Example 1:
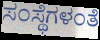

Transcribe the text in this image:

ಸಂಸ್ಥೆಗಳಂತೆ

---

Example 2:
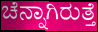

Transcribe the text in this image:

ಚೆನ್ನಾಗಿರುತ್ತೆ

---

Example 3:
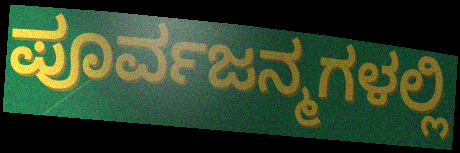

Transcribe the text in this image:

ಪೂರ್ವಜನ್ಮಗಳಲ್ಲಿ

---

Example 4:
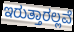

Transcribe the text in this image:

ಇರುತ್ತಾರಲ್ಲವೆ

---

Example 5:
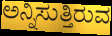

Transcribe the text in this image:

ಅನ್ನಿಸುತ್ತಿರುವ